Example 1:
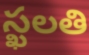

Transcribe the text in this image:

స్ఖలతి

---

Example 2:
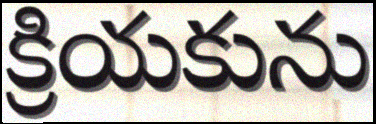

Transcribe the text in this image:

క్రియకును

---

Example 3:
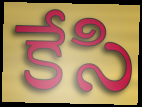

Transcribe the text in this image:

కేసి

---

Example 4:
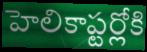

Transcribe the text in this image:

హెలికాప్టర్లోకి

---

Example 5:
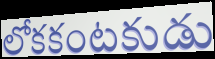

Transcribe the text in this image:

లోకకంటకుడు